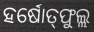
ହର୍ଷୋତ୍‌ଫୁଲ୍ଲ